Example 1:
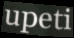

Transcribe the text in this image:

upeti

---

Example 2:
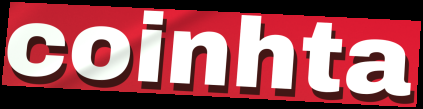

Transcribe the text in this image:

coinhta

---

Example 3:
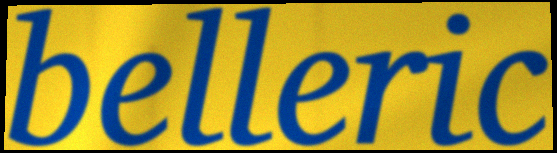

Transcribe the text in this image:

belleric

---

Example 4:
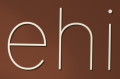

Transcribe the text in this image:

ehi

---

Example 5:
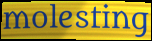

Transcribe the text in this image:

molesting